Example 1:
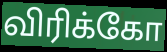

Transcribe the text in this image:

விரிக்கோ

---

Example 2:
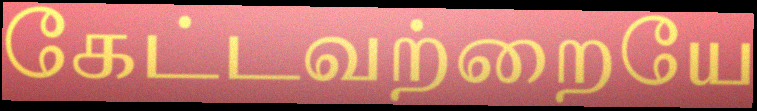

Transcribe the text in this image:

கேட்டவற்றையே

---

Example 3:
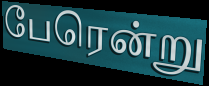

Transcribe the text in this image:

பேரென்று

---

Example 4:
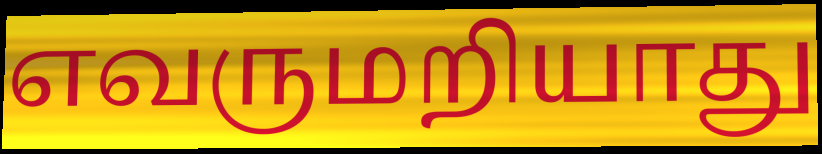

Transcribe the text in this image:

எவருமறியாது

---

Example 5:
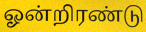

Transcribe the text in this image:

ஓன்றிரண்டு